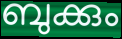
ബുക്കും